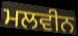
ਮਲਵੀਨ